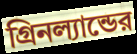
গ্রিনল্যান্ডের